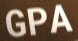
GPA